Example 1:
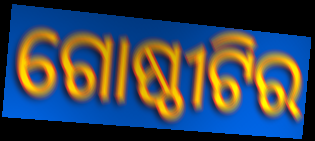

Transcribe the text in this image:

ଗୋଷ୍ଠୀଟିର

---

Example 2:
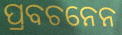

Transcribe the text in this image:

ପ୍ରବଚନେନ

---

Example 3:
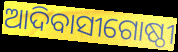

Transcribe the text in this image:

ଆଦିବାସୀଗୋଷ୍ଠୀ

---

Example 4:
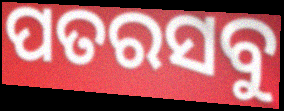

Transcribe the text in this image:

ପତରସବୁ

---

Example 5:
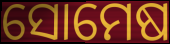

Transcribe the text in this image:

ସୋମେଷ